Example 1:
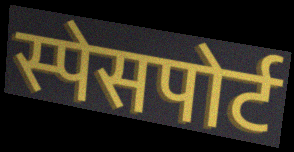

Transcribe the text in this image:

स्पेसपोर्ट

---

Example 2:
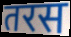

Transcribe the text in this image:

तरस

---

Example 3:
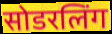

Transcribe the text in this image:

सोडरलिंग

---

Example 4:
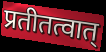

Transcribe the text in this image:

प्रतीतत्वात्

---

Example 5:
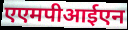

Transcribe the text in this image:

एएमपीआईएन